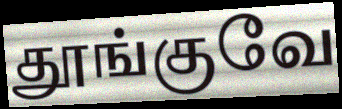
தூங்குவே